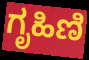
ಗೃಹಿಣಿ